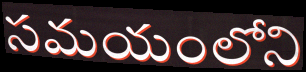
సమయంలోని